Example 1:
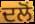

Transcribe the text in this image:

ਦਲੋਂ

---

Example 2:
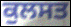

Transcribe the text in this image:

ਕੁਲਸਤ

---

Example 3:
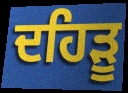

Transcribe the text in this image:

ਦਹਿੜੂ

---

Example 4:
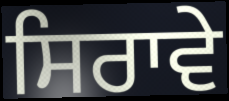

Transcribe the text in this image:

ਸਿਰਾਵੇ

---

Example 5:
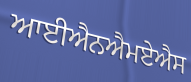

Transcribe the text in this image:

ਆਈਐਨਐਮਏਐਸ